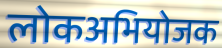
लोकअभियोजक